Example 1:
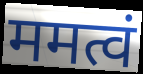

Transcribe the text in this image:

ममत्वं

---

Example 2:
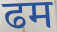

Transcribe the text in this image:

ढम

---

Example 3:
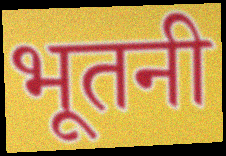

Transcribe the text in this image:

भूतनी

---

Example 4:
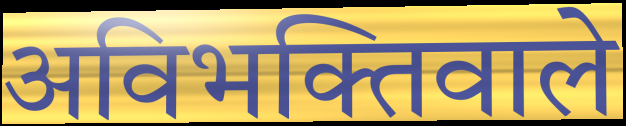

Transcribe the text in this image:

अविभक्तिवाले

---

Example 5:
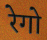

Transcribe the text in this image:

रेगो